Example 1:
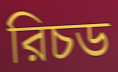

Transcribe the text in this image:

রিচড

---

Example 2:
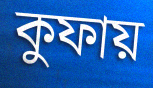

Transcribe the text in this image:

কুফায়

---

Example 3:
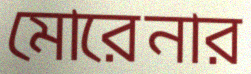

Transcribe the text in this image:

মোরেনার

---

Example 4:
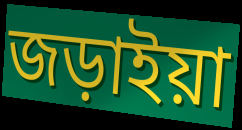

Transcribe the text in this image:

জড়াইয়া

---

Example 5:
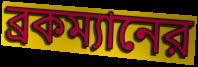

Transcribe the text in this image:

ব্রকম্যানের